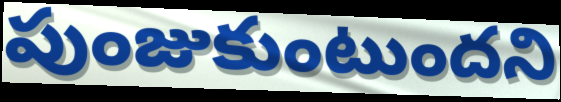
పుంజుకుంటుందని